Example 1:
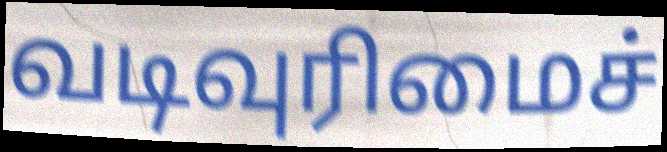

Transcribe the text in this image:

வடிவுரிமைச்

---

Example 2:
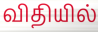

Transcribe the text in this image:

விதியில்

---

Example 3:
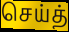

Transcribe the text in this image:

செய்த்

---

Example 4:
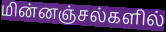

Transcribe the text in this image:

மின்னஞ்சல்களில்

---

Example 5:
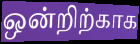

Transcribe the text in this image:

ஒன்றிற்காக